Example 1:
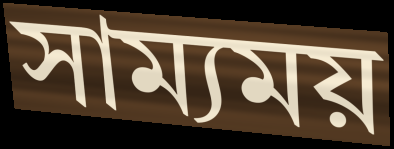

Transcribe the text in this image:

সাম্যময়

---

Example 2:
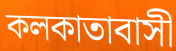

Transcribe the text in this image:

কলকাতাবাসী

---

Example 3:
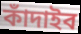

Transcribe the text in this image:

কাঁদাইব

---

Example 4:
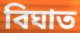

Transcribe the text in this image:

বিঘাত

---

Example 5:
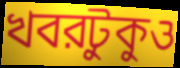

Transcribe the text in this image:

খবরটুকুও